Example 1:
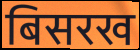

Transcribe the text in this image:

बिसरख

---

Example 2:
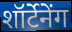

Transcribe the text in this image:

शॉर्टेनेंग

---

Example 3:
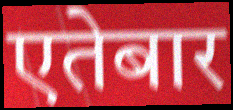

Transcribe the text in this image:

एतेबार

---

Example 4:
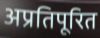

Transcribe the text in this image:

अप्रतिपूरित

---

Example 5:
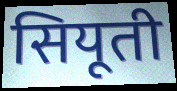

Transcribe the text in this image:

सियूती